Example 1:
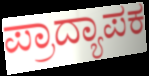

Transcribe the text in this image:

ಪ್ರಾದ್ಯಾಪಕ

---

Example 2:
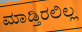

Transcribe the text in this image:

ಮಾಡ್ತಿರಲಿಲ್ಲ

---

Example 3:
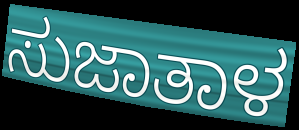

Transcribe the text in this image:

ಸುಜಾತಾಳ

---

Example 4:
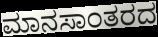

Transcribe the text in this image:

ಮಾನಸಾಂತರದ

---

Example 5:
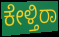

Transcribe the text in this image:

ಕೇಳ್ತಿರಾ